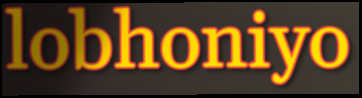
lobhoniyo